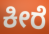
ಕೀರೆ